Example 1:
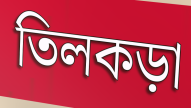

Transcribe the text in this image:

তিলকড়া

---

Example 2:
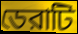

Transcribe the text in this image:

ডেরাটি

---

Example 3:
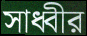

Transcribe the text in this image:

সাধ্বীর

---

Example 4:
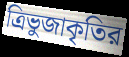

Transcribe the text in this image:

ত্রিভুজাকৃতির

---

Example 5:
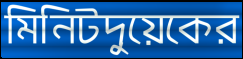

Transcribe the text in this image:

মিনিটদুয়েকের